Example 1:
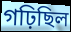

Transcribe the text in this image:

গঢ়িছিল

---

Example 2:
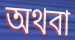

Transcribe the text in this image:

অথবা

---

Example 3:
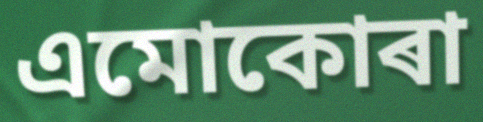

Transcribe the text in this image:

এমোকোৰা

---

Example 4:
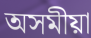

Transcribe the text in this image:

অসমীয়া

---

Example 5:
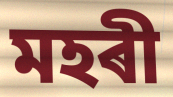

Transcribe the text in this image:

মহৰী